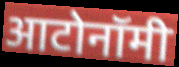
आटोनॉमी